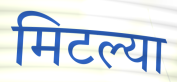
मिटल्या